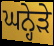
ਘਨ੍ਹੇੜੇ